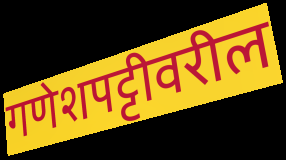
गणेशपट्टीवरील